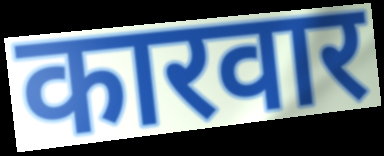
कारवार